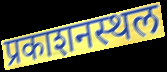
प्रकाशनस्थल